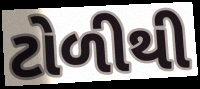
ટોળીથી